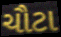
ચૌટા